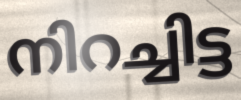
നിറച്ചിട്ട